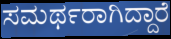
ಸಮರ್ಥರಾಗಿದ್ದಾರೆ